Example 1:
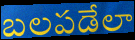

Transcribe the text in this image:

బలపడేలా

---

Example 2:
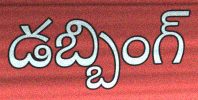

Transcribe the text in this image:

డబ్బింగ్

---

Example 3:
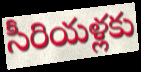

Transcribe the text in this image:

సీరియళ్లకు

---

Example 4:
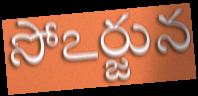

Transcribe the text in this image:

సోఽర్జున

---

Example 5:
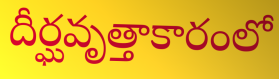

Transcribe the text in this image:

దీర్ఘవృత్తాకారంలో